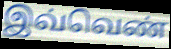
இவ்வெண்